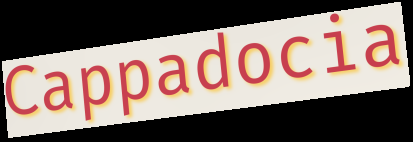
Cappadocia